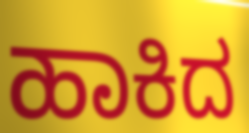
ಹಾಕಿದ